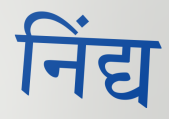
निंद्य